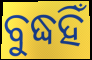
ବୁଦ୍ଧହିଁ